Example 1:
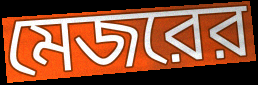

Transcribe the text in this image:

মেজরের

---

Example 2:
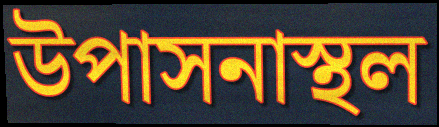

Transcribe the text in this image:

উপাসনাস্থল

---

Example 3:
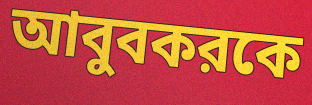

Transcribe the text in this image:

আবুবকরকে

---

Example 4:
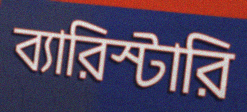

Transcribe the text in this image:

ব্যারিস্টারি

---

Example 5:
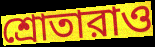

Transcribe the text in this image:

শ্রোতারাও